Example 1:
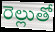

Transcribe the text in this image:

రెల్లుతో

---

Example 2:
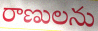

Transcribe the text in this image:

రాణులను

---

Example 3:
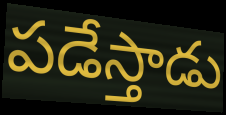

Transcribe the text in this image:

పడేస్తాడు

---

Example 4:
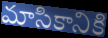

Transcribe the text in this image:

మాసికానికి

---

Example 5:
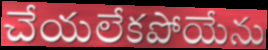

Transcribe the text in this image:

చేయలేకపోయేను